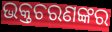
ଭକ୍ତଚରଣଙ୍କର